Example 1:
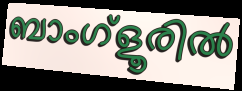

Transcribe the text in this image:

ബാംഗ്ളൂരിൽ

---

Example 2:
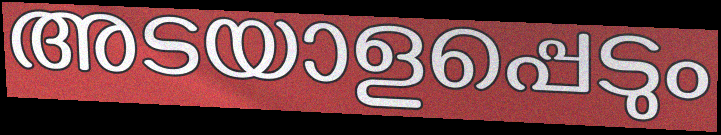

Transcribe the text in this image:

അടയാളപ്പെടും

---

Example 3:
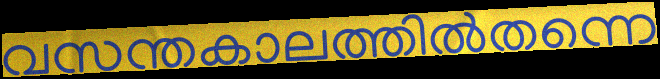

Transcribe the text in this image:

വസന്തകാലത്തിൽതന്നെ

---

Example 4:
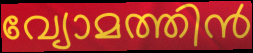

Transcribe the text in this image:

വ്യോമത്തിൻ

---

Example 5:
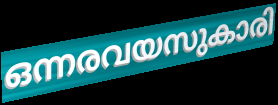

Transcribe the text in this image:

ഒന്നരവയസുകാരി